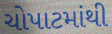
ચોપાટમાંથી